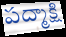
పద్మాక్షి